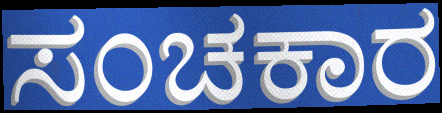
ಸಂಚಕಾರ